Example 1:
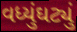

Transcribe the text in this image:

વધ્યુંઘટ્યું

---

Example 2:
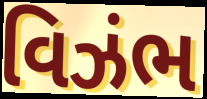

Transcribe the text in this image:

વિઝંભ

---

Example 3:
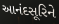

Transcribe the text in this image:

આનંદસૂરિને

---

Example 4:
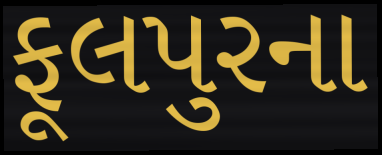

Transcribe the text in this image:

ફૂલપુરના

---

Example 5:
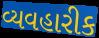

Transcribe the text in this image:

વ્યવહારીક